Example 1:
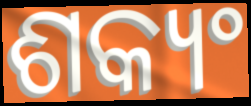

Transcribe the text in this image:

ଶକ୍ୟଂ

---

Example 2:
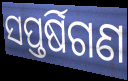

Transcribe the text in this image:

ସପ୍ତର୍ଷିଗଣ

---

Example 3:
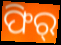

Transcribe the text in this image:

ଫିର୍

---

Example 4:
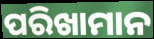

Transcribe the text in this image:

ପରିଖାମାନ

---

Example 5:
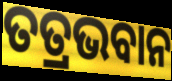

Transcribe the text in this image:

ତତ୍ରଭବାନ